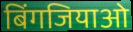
बिंगजियाओ